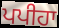
ਪਪੀਹਾ